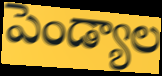
పెండ్యాల